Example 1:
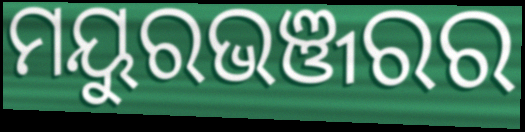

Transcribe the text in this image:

ମୟୁରଭଞ୍ଜରର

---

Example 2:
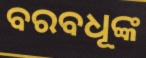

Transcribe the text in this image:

ବରବଧୂଙ୍କ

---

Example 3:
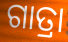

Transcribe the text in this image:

ଗାତ୍ରା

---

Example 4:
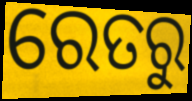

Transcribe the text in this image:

ରେତରୁ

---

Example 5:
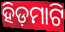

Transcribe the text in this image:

ହିଡ଼ମାଟି